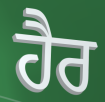
ਹੈਰ